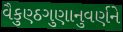
વૈકુણ્ઠગુણાનુવર્ણને